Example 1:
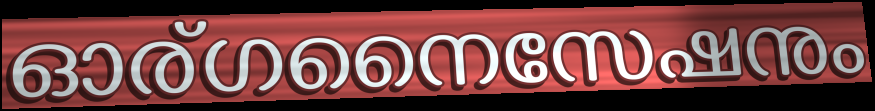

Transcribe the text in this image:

ഓര്ഗനൈസേഷനും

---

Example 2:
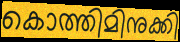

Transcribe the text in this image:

കൊത്തിമിനുക്കി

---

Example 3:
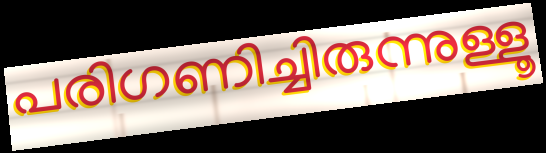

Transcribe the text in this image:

പരിഗണിച്ചിരുന്നുള്ളൂ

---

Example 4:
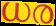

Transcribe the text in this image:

ധര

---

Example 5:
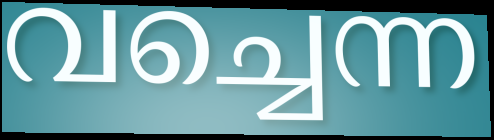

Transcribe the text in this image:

വച്ചെന്ന